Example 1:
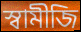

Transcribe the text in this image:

স্বামীজি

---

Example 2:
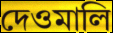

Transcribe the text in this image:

দেওমালি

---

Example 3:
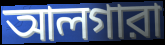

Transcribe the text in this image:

আলগারা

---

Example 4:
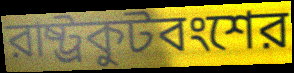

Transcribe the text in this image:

রাষ্ট্রকুটবংশের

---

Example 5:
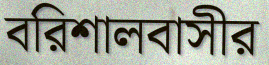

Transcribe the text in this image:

বরিশালবাসীর